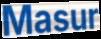
Masur